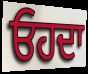
ਓਹਦਾ